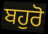
ਬਹੁਰੋ